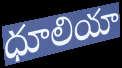
ధూలియా